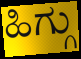
ಹಿಗ್ಗು